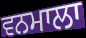
ਵਨਮਾਲਾ